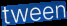
tween